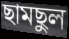
ছামছুল